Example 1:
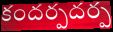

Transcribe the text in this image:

కందర్పదర్ప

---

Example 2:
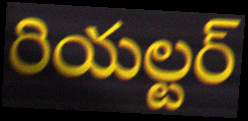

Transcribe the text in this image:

రియల్టర్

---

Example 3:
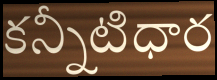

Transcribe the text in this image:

కన్నీటిధార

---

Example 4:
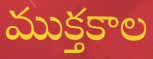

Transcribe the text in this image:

ముక్తకాల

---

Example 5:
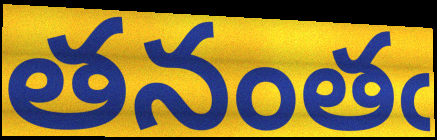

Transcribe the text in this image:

తనంతఁ